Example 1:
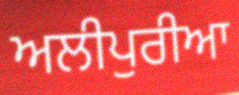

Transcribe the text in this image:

ਅਲੀਪੁਰੀਆ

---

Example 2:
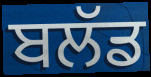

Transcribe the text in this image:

ਬਲੱਡ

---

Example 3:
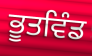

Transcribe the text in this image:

ਭੂਤਵਿੰਡ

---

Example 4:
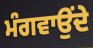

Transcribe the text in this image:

ਮੰਗਵਾਉਂਦੇ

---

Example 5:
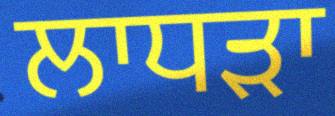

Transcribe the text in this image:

ਲਾਧੜਾ